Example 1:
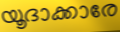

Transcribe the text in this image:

യൂദാക്കാരേ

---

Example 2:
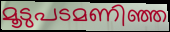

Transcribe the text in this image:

മൂടുപടമണിഞ്ഞ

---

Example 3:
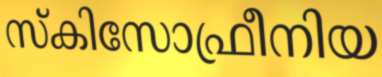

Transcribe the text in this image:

സ്കിസോഫ്രീനിയ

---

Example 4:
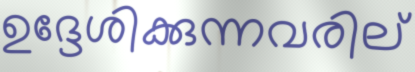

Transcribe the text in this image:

ഉദ്ദേശിക്കുന്നവരില്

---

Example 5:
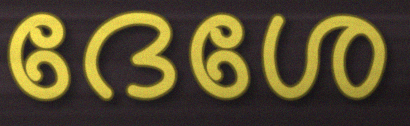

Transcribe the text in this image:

ദേശേ